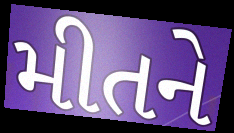
મીતને